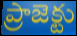
ప్రాజెక్టు